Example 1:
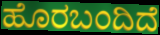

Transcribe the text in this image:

ಹೊರಬಂದಿದೆ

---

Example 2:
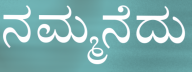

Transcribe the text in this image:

ನಮ್ಮನೆದು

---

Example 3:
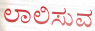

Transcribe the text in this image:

ಲಾಲಿಸುವ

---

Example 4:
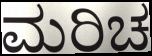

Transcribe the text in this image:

ಮರಿಚ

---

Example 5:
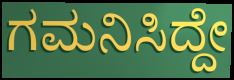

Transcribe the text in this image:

ಗಮನಿಸಿದ್ದೇ